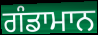
ਗੰਡਾਮਾਨ